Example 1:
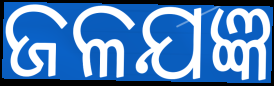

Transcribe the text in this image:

ଜଳଯଜ୍ଞ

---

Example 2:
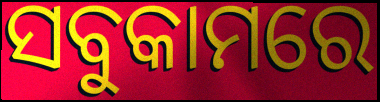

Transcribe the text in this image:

ସବୁକାମରେ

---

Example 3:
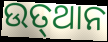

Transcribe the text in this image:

ଉତ୍‍ଥାନ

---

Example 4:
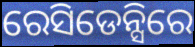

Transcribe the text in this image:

ରେସିଡେନ୍ସିରେ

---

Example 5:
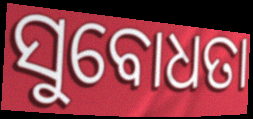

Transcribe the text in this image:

ସୁବୋଧତା